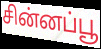
சின்னப்பூ